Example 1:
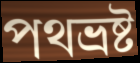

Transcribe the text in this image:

পথভ্ৰষ্ট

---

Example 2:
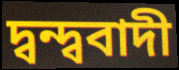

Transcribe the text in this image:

দ্বন্দ্ববাদী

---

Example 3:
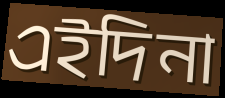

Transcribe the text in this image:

এইদিনা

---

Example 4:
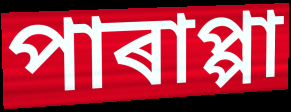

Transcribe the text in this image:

পাৰাপ্পা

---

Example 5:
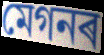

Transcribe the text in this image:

মেগনৰ